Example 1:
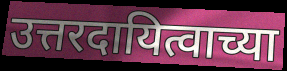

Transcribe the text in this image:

उत्तरदायित्वाच्या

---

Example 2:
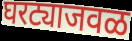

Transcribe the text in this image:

घरट्याजवळ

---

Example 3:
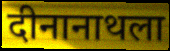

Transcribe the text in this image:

दीनानाथला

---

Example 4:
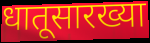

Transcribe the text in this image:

धातूसारख्या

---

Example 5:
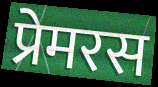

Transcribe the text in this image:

प्रेमरस